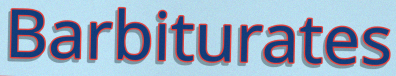
Barbiturates